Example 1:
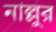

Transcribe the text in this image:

নাল্লুর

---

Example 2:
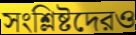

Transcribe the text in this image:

সংশ্লিষ্টদেরও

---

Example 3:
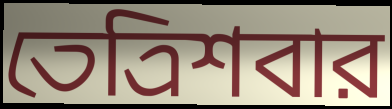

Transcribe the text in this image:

তেত্রিশবার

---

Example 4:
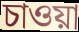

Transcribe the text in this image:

চাওয়া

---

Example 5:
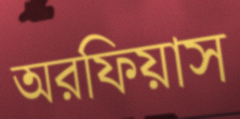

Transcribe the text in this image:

অরফিয়াস